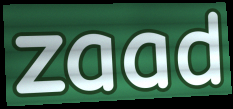
zaad